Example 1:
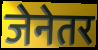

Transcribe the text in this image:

जेनेतर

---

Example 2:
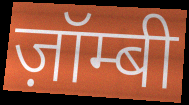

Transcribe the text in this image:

ज़ॉम्बी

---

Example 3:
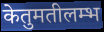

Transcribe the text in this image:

केतुमतीलम्भ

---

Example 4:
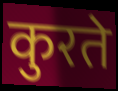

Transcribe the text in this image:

कुरते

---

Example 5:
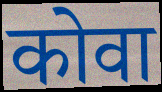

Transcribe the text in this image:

कोवा